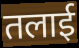
तलाई